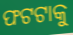
ଫଟଟାକୁ